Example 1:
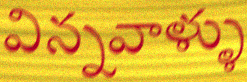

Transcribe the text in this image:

విన్నవాళ్ళు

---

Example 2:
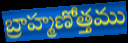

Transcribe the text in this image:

బ్రాహ్మణోత్తము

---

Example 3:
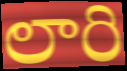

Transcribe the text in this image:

లారి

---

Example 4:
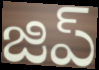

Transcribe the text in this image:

జిప్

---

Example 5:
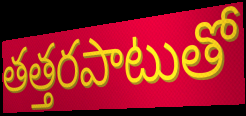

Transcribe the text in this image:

తత్తరపాటుతో